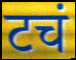
टचं